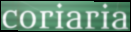
coriaria